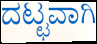
ದಟ್ಟವಾಗಿ